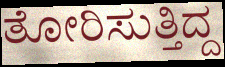
ತೋರಿಸುತ್ತಿದ್ದ